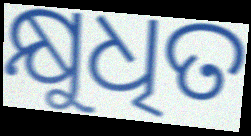
କ୍ଷୁଧିତ